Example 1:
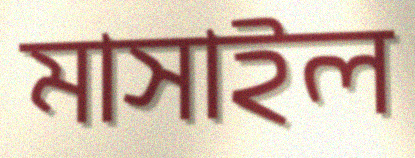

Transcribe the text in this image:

মাসাইল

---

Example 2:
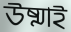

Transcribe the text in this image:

উষ্মাই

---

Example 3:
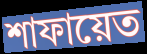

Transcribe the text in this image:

শাফায়েত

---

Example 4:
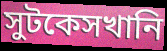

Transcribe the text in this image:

সুটকেসখানি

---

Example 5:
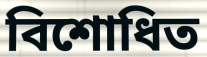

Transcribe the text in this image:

বিশোধিত